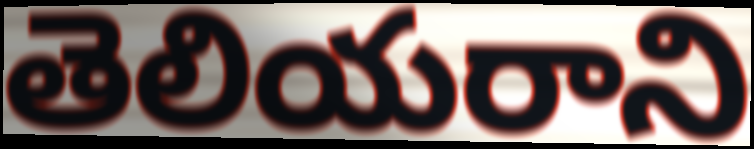
తెలియరాని